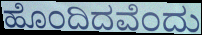
ಹೊಂದಿದವೆಂದು